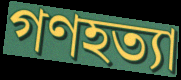
গণহত্যা